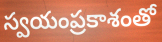
స్వయంప్రకాశంతో